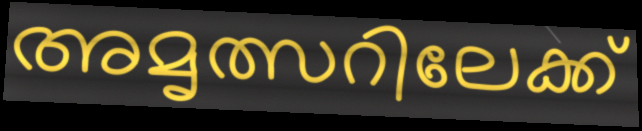
അമൃത്സറിലേക്ക്